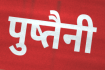
पुष्तैनी